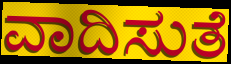
ವಾದಿಸುತೆ